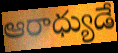
ఆరాధ్యుడే